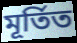
মূৰ্তিত